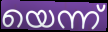
യെന്ന്